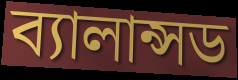
ব্যালান্সড